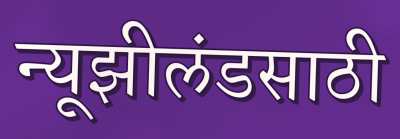
न्यूझीलंडसाठी